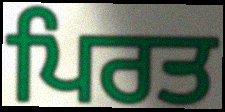
ਪਿਰਤ